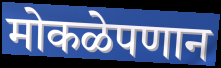
मोकळेपणान